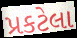
પ્રકટેલા